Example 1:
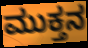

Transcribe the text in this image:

ಮುಕ್ತನ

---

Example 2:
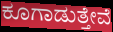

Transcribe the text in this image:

ಕೂಗಾಡುತ್ತೇವೆ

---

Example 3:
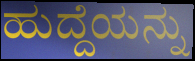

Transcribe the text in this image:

ಹುದ್ದೆಯನ್ನು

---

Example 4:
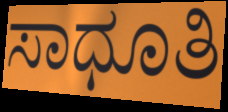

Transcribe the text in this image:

ಸಾಧೂತಿ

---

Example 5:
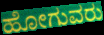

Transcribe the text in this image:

ಹೋಗುವರು